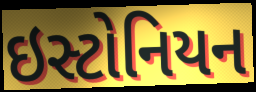
ઇસ્ટોનિયન